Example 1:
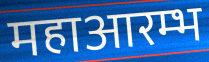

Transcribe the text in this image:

महाआरम्भ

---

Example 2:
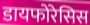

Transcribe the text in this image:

डायफोरेसिस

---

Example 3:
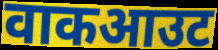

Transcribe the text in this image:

वाकआउट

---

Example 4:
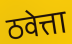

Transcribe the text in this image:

ठवेत्ता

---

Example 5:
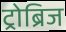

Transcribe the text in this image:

ट्रोब्रिज